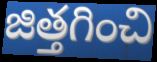
జిత్తగించి